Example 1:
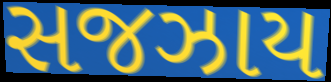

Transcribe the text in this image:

સજઝાય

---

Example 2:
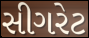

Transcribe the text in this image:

સીગરેટ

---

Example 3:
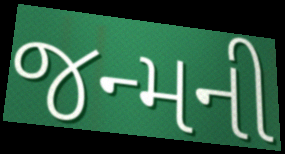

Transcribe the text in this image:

જન્મની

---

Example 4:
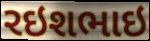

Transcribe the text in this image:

રઇશભાઇ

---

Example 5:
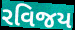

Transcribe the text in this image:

રવિજય